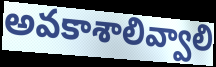
అవకాశాలివ్వాలి